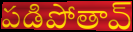
పడిపోతావ్